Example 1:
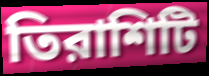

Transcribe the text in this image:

তিরাশিটি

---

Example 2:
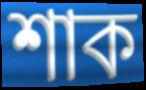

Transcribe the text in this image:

শাক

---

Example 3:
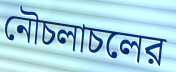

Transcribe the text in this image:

নৌচলাচলের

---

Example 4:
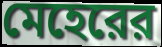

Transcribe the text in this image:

মেহেরের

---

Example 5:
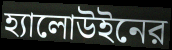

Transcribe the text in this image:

হ্যালোউইনের